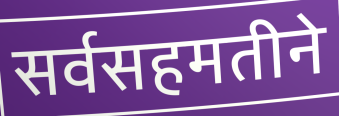
सर्वसहमतीने